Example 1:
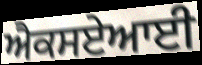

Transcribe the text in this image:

ਐਕਸਏਆਈ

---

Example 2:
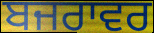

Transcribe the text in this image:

ਬਜਰਾਵਰ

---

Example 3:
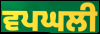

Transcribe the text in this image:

ਵਪਘਲੀ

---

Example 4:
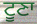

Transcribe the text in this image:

ਟੂਣਾ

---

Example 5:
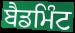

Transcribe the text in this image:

ਬੈਡਮਿੰਟ